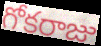
గోకరాజు